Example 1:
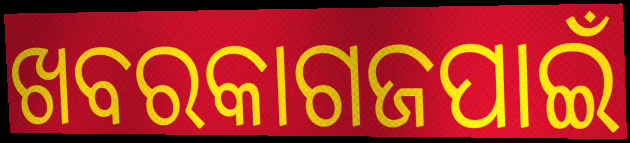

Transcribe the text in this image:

ଖବରକାଗଜପାଇଁ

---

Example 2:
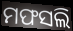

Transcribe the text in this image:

ମଫସଲି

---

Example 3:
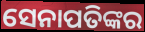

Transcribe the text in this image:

ସେନାପତିଙ୍କର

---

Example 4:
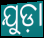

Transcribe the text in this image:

ଯୁଡ଼ା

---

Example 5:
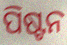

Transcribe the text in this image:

ପିଷ୍ଟନ